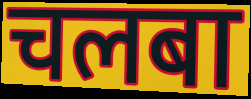
चलबा